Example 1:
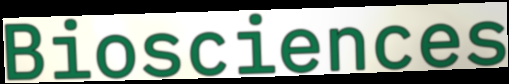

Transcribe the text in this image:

Biosciences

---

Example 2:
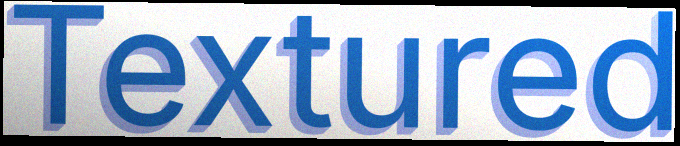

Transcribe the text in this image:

Textured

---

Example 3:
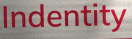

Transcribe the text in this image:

Indentity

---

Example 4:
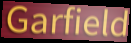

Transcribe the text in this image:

Garfield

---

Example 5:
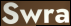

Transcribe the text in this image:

Swra